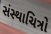
સંસ્થાચિત્રો